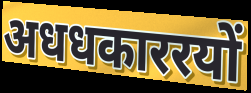
अधधकाररयों